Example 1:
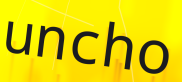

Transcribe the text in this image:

uncho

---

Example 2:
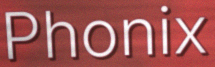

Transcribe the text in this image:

Phonix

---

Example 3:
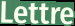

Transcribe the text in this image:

Lettre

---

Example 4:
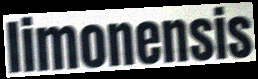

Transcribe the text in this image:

limonensis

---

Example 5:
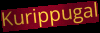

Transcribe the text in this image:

Kurippugal